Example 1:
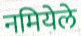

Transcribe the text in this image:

नमियेले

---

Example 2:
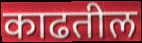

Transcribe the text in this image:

काढतील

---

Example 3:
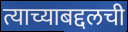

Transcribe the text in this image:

त्याच्याबद्दलची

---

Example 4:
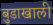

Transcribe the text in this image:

बुडाखाली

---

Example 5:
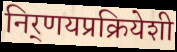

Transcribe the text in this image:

निर्णयप्रक्रियेशी